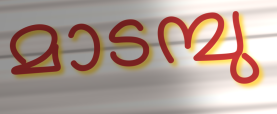
മാടമ്പു